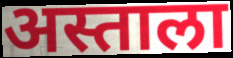
अस्ताला